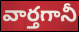
వార్తగానీ